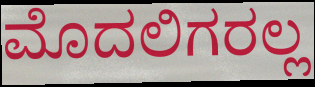
ಮೊದಲಿಗರಲ್ಲ